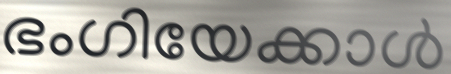
ഭംഗിയേക്കാൾ